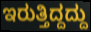
ಇರುತ್ತಿದ್ದದ್ದು